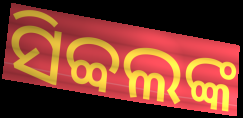
ସିବ୍ବଲଙ୍କ